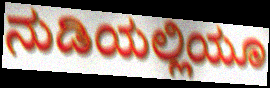
ನುಡಿಯಲ್ಲಿಯೂ